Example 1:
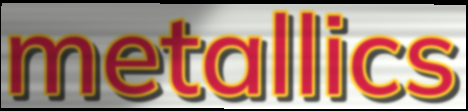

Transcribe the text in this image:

metallics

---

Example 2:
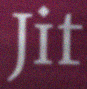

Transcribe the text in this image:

Jit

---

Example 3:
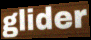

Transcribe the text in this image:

glider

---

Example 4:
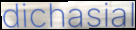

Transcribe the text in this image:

dichasial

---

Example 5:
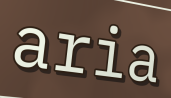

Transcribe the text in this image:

aria